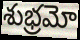
శుభ్రమో